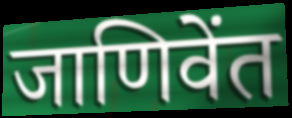
जाणिवेंत